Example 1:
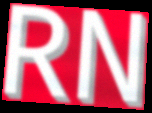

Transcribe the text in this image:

RN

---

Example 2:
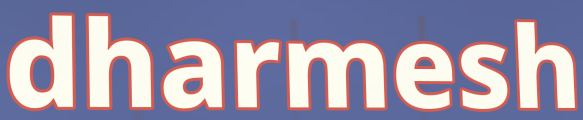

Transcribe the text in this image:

dharmesh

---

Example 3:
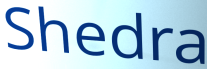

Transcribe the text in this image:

Shedra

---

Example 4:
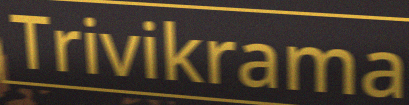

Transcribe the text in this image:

Trivikrama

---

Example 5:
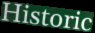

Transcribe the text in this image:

Historic